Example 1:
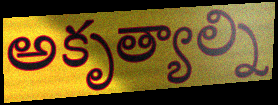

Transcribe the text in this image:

అకృత్యాల్ని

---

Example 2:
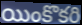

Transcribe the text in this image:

యింకొకరి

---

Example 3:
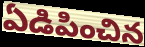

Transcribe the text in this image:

ఏడిపించిన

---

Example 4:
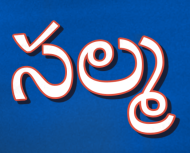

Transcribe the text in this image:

సల్మ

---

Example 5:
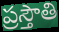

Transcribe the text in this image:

ప్రస్తౌతి